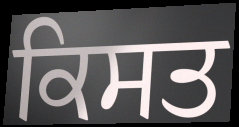
ਕਿਸਤ